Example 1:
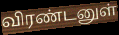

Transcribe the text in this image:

விரண்டனுள்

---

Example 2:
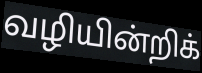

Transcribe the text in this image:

வழியின்றிக்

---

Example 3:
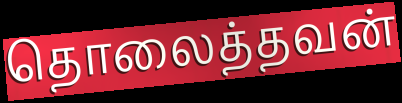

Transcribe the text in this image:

தொலைத்தவன்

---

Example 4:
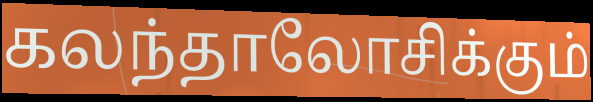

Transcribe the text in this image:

கலந்தாலோசிக்கும்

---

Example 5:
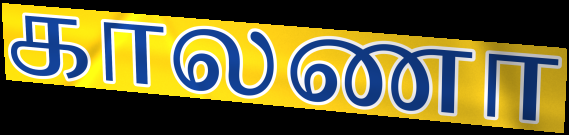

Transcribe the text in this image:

காலணா